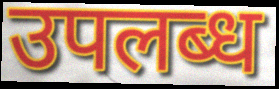
उपलब्ध